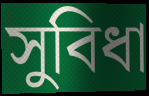
সুবিধা